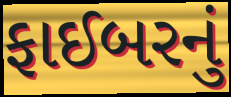
ફાઈબરનું